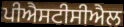
ਪੀਐਸਟੀਸੀਐਲ